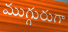
ముగ్గురుగా